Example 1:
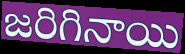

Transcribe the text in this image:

జరిగినాయి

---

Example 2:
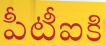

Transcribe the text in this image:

పీటీఐకి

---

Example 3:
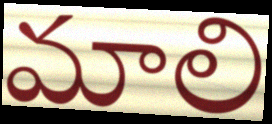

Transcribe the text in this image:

మాలి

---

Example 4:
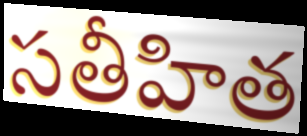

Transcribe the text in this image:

సతీహిత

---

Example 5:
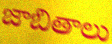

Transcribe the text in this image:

జాబితాలు